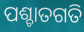
ପଶ୍ଚାତଗତି